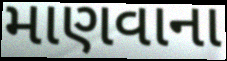
માણવાના